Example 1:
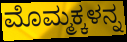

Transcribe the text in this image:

ಮೊಮ್ಮಕ್ಕಳನ್ನ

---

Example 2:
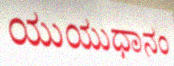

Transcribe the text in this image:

ಯುಯುಧಾನಂ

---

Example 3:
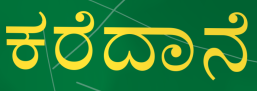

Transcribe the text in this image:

ಕರೆದಾನೆ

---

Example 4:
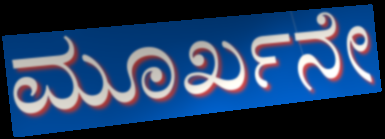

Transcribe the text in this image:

ಮೂರ್ಖನೇ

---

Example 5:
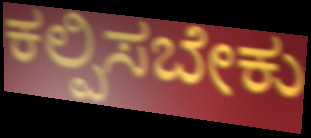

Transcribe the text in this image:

ಕಲ್ಪಿಸಬೇಕು